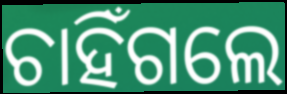
ଚାହିଁଗଲେ